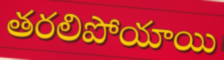
తరలిపోయాయి